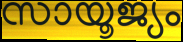
സായൂജ്യം